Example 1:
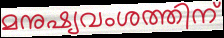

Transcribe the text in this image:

മനുഷ്യവംശത്തിന്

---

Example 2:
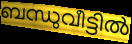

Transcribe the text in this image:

ബന്ധുവീട്ടിൽ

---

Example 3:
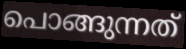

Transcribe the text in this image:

പൊങ്ങുന്നത്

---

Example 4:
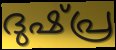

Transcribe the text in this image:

ദുഷ്‌പ്ര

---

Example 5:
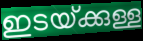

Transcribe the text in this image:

ഇടയ്‌ക്കുള്ള